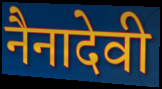
नैनादेवी